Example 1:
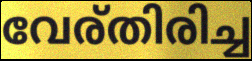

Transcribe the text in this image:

വേര്തിരിച്ച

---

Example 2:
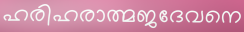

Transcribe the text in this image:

ഹരിഹരാത്മജദേവനെ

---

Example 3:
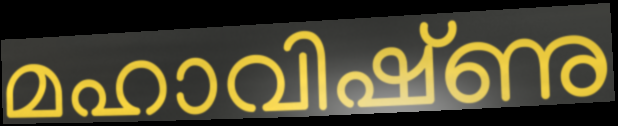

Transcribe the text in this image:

മഹാവിഷ്‌ണു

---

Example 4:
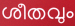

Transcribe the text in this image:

ശീതവും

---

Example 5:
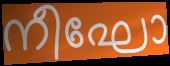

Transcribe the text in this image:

നീഘോ